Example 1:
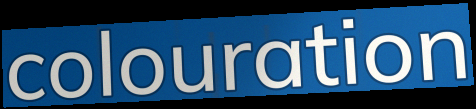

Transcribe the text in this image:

colouration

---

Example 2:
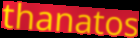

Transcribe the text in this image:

thanatos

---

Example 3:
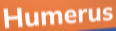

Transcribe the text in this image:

Humerus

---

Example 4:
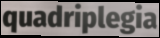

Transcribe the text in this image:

quadriplegia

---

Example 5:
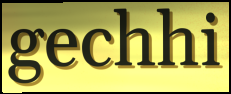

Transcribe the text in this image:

gechhi